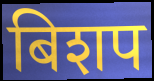
बिशप